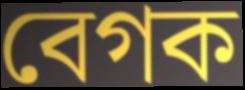
বেগক